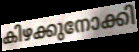
കിഴക്കുനോക്കി